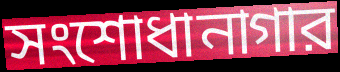
সংশোধানাগার